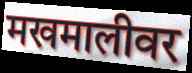
मखमालीवर